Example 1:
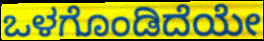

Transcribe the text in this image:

ಒಳಗೊಂಡಿದೆಯೇ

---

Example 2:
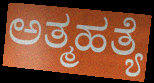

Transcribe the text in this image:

ಅತ್ಮಹತ್ಯೆ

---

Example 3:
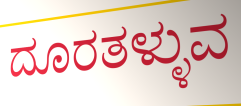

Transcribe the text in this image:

ದೂರತಳ್ಳುವ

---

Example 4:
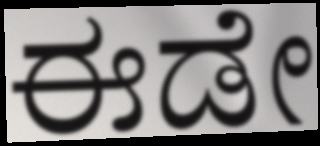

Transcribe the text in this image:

ಈಡೇ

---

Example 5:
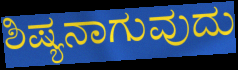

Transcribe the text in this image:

ಶಿಷ್ಯನಾಗುವುದು